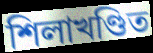
শিলাখণ্ডিত